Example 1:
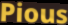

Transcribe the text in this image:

Pious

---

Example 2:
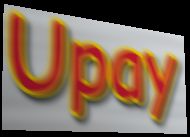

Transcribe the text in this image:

Upay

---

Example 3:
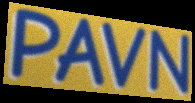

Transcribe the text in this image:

PAVN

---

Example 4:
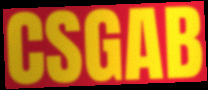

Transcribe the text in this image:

CSGAB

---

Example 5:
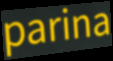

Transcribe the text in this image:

parina